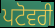
ਪਟੋਵਰੀ